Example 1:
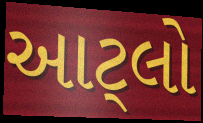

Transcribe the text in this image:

આટ્લો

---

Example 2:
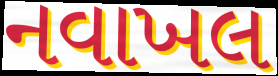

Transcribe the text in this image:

નવાખલ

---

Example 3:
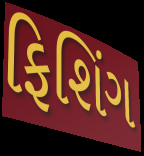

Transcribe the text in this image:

ફિશિંગ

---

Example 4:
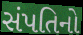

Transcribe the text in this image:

સંપતિનો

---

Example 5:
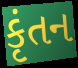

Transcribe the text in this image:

કૃંતન